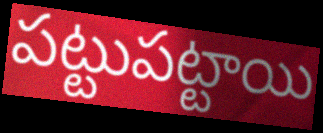
పట్టుపట్టాయి